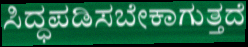
ಸಿದ್ಧಪಡಿಸಬೇಕಾಗುತ್ತದೆ